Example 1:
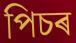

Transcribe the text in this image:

পিচৰ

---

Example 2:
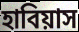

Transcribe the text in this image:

হাবিয়াস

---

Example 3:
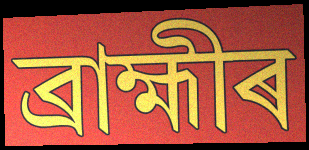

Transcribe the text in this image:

ব্ৰাহ্মীৰ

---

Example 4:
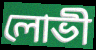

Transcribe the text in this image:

লোভী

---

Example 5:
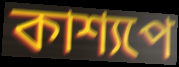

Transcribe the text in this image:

কাশ্যপে